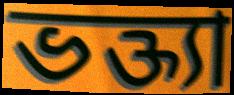
ভক্ত্যা